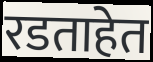
रडताहेत